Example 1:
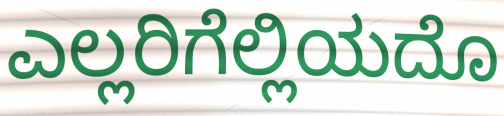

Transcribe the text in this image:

ಎಲ್ಲರಿಗೆಲ್ಲಿಯದೊ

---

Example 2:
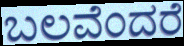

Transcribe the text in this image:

ಬಲವೆಂದರೆ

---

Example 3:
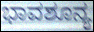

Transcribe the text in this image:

ಭಾವಶೂನ್ಯ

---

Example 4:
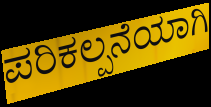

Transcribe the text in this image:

ಪರಿಕಲ್ಪನೆಯಾಗಿ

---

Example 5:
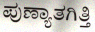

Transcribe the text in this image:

ಪುಣ್ಯಾತಗಿತ್ತಿ